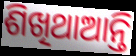
ଶିଖିଥାଆନ୍ତି